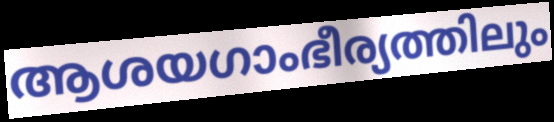
ആശയഗാംഭീര്യത്തിലും